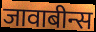
जावाबीन्स